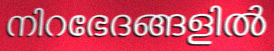
നിറഭേദങ്ങളിൽ